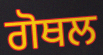
ਗੋਥਲ